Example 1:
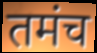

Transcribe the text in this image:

तमंच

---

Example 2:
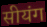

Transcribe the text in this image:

सीयंग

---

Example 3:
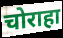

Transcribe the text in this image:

चोराहा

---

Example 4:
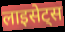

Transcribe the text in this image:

लाइसेट्स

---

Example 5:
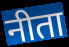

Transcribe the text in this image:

नीता